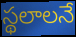
స్థలాలనే